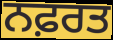
ਨਫ਼ਰਤ